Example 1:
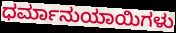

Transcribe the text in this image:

ಧರ್ಮಾನುಯಾಯಿಗಳು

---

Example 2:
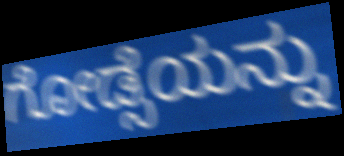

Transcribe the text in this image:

ಗೋಡ್ಸೆಯನ್ನು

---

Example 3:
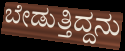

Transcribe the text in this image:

ಬೇಡುತ್ತಿದ್ದನು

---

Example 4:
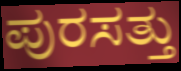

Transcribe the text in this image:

ಪುರಸತ್ತು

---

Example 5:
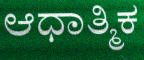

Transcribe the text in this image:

ಆಧಾತ್ಮಿಕ